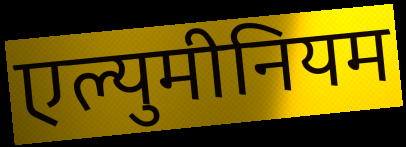
एल्युमीनियम